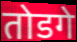
तोडगे